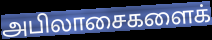
அபிலாசைகளைக்